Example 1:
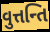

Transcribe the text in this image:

વુત્તન્તિ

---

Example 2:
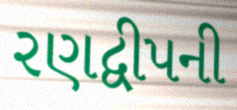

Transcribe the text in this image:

રણદ્વીપની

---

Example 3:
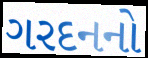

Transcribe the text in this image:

ગરદનનો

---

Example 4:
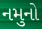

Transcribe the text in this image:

નમુનો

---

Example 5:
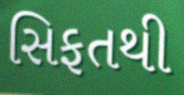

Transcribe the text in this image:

સિફતથી